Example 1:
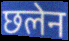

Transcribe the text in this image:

छलेन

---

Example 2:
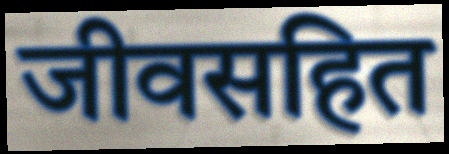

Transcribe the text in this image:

जीवसहित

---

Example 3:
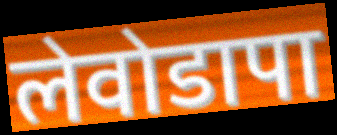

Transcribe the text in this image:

लेवोडापा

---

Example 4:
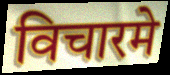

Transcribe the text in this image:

विचारमे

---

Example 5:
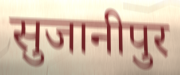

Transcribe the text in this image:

सुजानीपुर